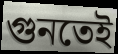
গুনতেই